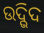
ଉଦ୍ଭିଦ